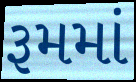
રૂમમાં